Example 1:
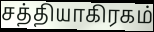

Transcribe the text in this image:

சத்தியாகிரகம்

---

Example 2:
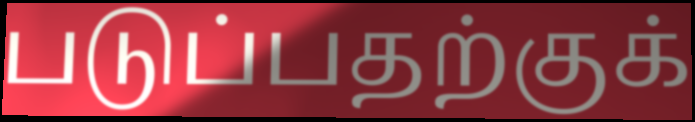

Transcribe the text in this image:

படுப்பதற்குக்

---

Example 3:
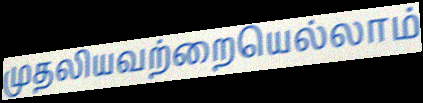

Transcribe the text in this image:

முதலியவற்றையெல்லாம்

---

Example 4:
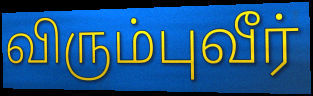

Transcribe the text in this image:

விரும்புவீர்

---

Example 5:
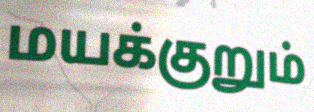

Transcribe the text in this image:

மயக்குறும்